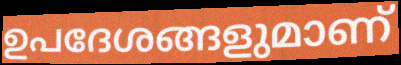
ഉപദേശങ്ങളുമാണ്